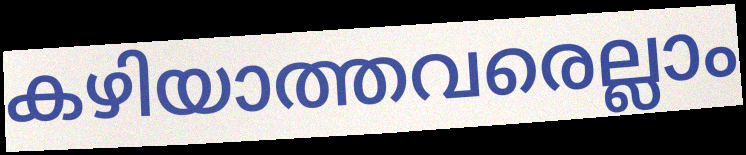
കഴിയാത്തവരെല്ലാം